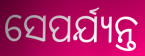
ସେପର୍ଯ୍ୟନ୍ତ